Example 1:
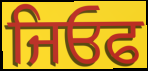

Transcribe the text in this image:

ਜਿਓਫ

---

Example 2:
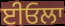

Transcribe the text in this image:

ਈਓਲਾ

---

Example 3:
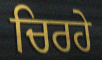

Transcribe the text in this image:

ਚਿਰਹੇ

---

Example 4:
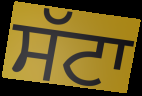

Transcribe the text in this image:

ਸੱਟਾ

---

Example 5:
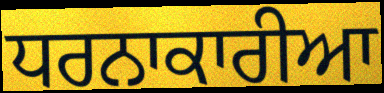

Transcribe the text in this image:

ਧਰਨਾਕਾਰੀਆ